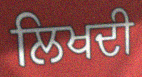
ਲਿਖਦੀ